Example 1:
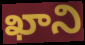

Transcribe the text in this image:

ఖాని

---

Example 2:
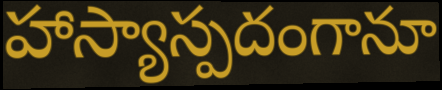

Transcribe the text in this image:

హాస్యాస్పదంగానూ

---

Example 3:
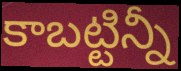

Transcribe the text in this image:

కాబట్టిన్నీ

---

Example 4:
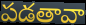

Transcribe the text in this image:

పడతావా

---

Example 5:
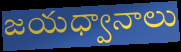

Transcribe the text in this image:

జయధ్వానాలు